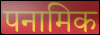
पनामिक